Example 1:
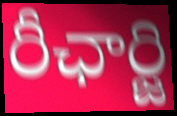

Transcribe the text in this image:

రీఛార్జి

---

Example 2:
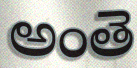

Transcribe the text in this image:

అంతె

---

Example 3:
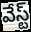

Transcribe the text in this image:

వేస్ట్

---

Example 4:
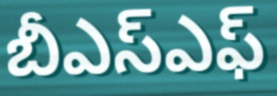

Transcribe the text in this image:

బీఎస్ఎఫ్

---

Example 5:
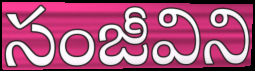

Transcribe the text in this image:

సంజీవిని